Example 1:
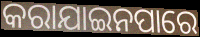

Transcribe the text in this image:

କରାଯାଇନପାରେ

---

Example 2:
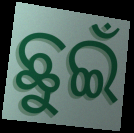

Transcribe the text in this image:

ଛୁଇଁ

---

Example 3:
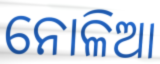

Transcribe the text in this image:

ନୋଳିଆ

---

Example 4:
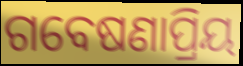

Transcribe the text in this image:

ଗବେଷଣାପ୍ରିୟ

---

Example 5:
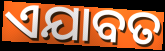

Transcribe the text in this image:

ଏଯାବତ